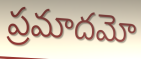
ప్రమాదమో